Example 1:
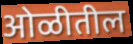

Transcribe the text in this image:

ओळीतील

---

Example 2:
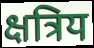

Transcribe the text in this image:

क्षत्रिय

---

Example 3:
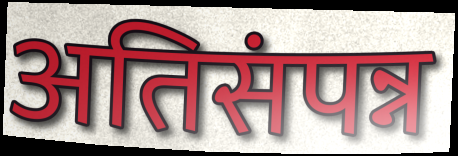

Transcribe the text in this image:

अतिसंपन्न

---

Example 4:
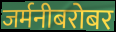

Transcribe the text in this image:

जर्मनीबरोबर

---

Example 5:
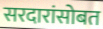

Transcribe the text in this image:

सरदारांसोबत